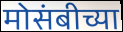
मोसंबीच्या